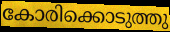
കോരിക്കൊടുത്തു